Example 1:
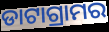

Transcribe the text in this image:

ଡାଟାଗ୍ରାମର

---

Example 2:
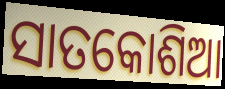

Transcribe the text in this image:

ସାତକୋଶିଆ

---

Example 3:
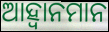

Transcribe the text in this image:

ଆହ୍ୱାନମାନ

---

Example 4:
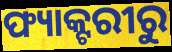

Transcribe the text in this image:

ଫ୍ୟାକ୍ଟରୀରୁ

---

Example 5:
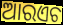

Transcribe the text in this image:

ଆରଏଚ